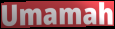
Umamah